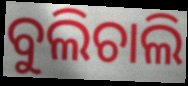
ବୁଲିଚାଲି